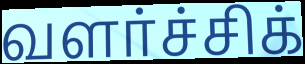
வளர்ச்சிக்